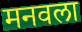
मनवला